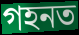
গহনত